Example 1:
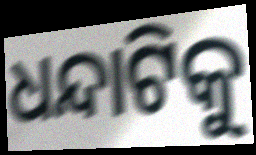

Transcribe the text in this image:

ଧନ୍ଦାଟିକୁ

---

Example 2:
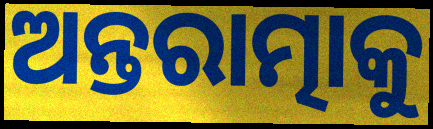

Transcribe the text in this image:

ଅନ୍ତରାତ୍ମାକୁ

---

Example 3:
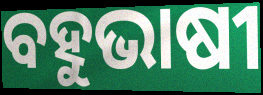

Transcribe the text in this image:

ବହୁଭାଷୀ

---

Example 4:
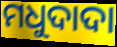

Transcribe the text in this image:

ମଧୁଦାଦା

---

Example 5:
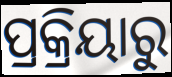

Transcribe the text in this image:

ପ୍ରକ୍ରିୟାରୁ